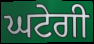
ਘਟੇਗੀ